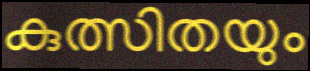
കുത്സിതയും